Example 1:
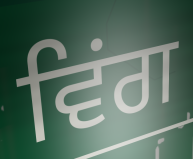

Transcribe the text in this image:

ਵਿਂਗ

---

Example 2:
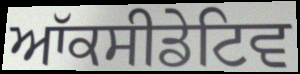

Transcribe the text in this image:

ਆੱਕਸੀਡੇਟਿਵ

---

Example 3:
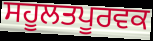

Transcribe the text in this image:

ਸਹੂਲਤਪੂਰਵਕ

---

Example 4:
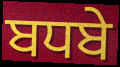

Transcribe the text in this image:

ਬਧਬੇ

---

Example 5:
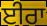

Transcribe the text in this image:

ਈਰਾ